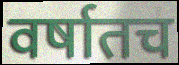
वर्षातच